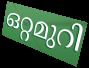
ഒറ്റമുറി